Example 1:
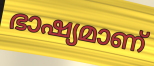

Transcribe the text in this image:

ഭാഷ്യമാണ്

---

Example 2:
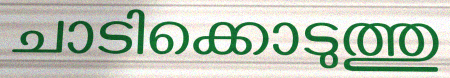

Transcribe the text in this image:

ചാടിക്കൊടുത്തു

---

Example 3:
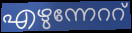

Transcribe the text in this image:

എഴുന്നേററ്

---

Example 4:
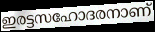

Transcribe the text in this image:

ഇരട്ടസഹോദരനാണ്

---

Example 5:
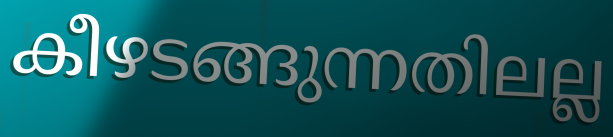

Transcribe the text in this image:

കീഴടങ്ങുന്നതിലല്ല